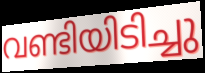
വണ്ടിയിടിച്ചു